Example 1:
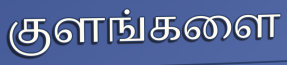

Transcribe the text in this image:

குளங்களை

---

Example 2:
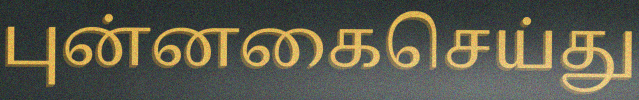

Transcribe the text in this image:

புன்னகைசெய்து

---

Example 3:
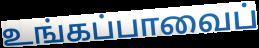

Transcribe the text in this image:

உங்கப்பாவைப்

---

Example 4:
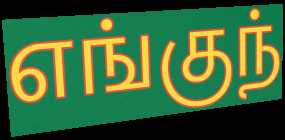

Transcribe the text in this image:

எங்குந்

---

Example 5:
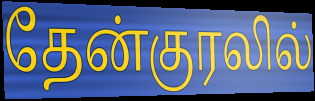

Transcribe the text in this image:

தேன்குரலில்